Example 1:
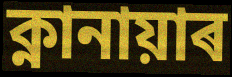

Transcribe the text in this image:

ক্নানায়াৰ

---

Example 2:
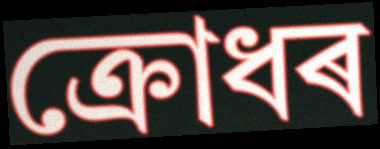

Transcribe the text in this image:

ক্ৰোধৰ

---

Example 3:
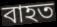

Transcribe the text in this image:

বাহত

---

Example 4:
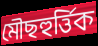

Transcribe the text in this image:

মৌছহুৰ্ত্তিক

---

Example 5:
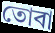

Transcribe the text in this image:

তোবা